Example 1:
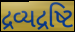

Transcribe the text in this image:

દ્રવ્યદ્રષ્ટિ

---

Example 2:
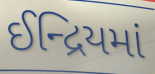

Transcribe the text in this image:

ઈન્દ્રિયમાં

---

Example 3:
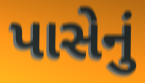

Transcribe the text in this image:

પાસેનું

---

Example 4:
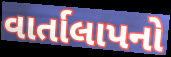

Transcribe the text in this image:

વાર્તાલાપનો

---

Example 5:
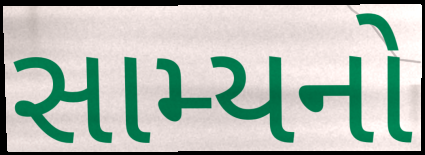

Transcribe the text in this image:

સામ્યનો